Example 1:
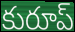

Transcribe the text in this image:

కురూప్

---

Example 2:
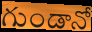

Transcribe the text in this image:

గుండానో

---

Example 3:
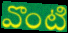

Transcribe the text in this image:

వొంటి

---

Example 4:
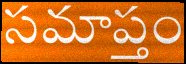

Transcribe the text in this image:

సమాప్తం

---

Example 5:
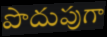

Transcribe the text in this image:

పొదుపుగా